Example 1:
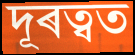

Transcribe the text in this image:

দূৰত্বত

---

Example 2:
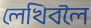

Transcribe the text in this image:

লেখিবলৈ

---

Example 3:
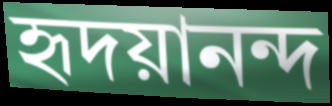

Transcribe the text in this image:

হৃদয়ানন্দ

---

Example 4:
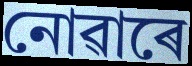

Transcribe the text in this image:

নোৱাৰে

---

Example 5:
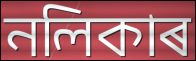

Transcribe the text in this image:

নলিকাৰ